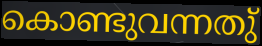
കൊണ്ടുവന്നതു്